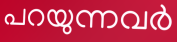
പറയുന്നവർ